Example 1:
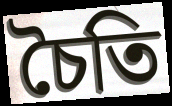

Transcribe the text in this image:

চৈতি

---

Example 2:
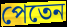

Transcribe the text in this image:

পেতেন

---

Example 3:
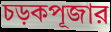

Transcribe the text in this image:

চড়কপূজার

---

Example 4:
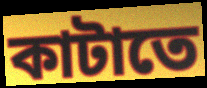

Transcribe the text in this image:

কাটাতে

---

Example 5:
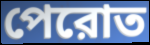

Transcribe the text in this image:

পেরোত